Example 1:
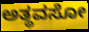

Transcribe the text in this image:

ಅತ್ಥವಸೋ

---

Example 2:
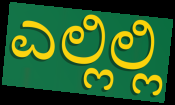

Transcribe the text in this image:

ಎಲ್ಲಿಲ್ಲಿ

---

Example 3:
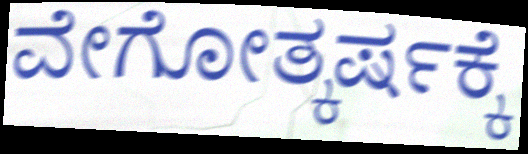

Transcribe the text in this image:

ವೇಗೋತ್ಕರ್ಷಕ್ಕೆ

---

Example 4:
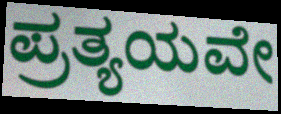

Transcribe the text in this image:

ಪ್ರತ್ಯಯವೇ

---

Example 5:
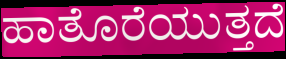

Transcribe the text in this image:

ಹಾತೊರೆಯುತ್ತದೆ